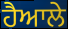
ਹੈਆਲੇ